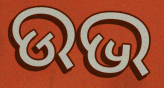
ଉଭ